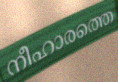
നീഹാരത്തെ